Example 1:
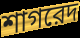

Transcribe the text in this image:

শাগরেদ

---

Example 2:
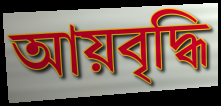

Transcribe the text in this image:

আয়বৃদ্ধি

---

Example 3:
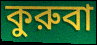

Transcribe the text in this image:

কুরুবা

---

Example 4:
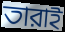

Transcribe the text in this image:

তারাই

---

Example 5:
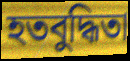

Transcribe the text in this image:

হতবুদ্ধিতা